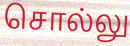
சொல்லு